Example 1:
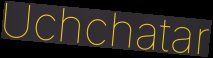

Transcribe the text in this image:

Uchchatar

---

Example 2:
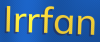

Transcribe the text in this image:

Irrfan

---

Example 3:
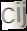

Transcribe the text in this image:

cij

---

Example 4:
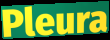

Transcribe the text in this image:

Pleura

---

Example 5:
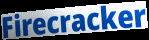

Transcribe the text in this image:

Firecracker